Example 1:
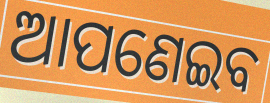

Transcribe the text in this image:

ଆପଣେଇବ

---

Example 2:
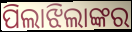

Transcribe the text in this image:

ପିଲାଝିଲାଙ୍କର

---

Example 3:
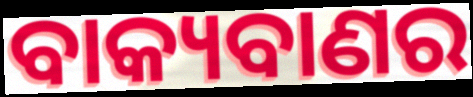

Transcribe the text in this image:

ବାକ୍ୟବାଣର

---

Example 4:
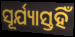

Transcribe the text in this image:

ସୂର୍ଯ୍ୟାସ୍ତହିଁ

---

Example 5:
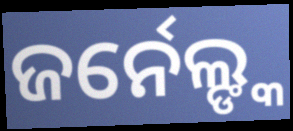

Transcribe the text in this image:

ଜର୍ନେଲ୍ଙ୍କ